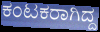
ಕಂಟಕರಾಗಿದ್ದ